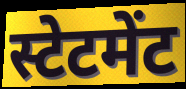
स्टेटमेंट